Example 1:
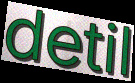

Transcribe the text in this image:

detil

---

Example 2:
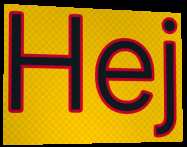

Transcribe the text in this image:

Hej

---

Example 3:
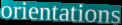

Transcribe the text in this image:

orientations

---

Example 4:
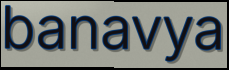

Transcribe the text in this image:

banavya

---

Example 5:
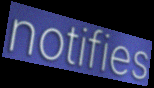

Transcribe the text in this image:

notifies